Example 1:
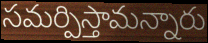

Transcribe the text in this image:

సమర్పిస్తామన్నారు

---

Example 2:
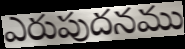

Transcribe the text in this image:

ఎరుపుదనము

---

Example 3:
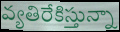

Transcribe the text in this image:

వ్యతిరేకిస్తున్నా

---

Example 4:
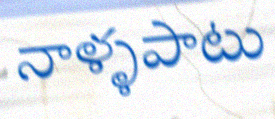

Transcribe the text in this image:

నాళ్ళపాటు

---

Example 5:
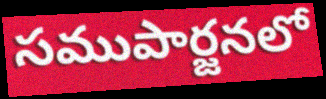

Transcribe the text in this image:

సముపార్జనలో